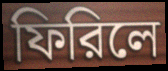
ফিরিলে